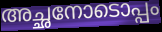
അച്ഛനോടൊപ്പം